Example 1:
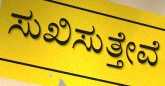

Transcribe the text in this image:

ಸುಖಿಸುತ್ತೇವೆ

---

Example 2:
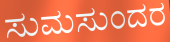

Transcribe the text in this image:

ಸುಮಸುಂದರ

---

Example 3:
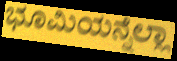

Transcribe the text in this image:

ಭೂಮಿಯನ್ನೆಲ್ಲಾ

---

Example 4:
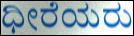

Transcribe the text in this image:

ಧೀರೆಯರು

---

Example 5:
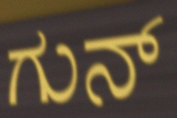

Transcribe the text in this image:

ಗುನ್